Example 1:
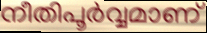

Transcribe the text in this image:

നീതിപൂർവ്വമാണ്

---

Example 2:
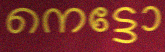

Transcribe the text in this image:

നെട്ടോ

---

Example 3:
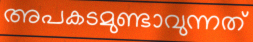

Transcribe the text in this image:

അപകടമുണ്ടാവുന്നത്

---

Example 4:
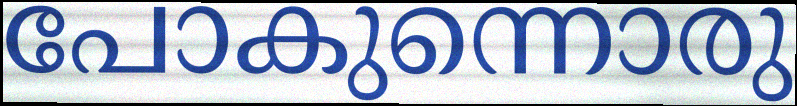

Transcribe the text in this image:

പോകുന്നൊരു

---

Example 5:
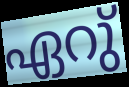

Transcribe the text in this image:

ഏറു്